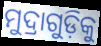
ମୁଦ୍ରାଗୁଡ଼ିକୁ